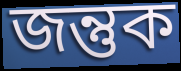
জন্তুক